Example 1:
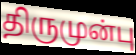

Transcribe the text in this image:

திருமுன்பு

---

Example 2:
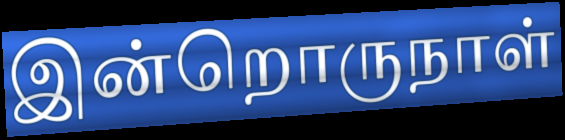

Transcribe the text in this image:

இன்றொருநாள்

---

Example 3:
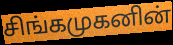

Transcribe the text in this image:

சிங்கமுகனின்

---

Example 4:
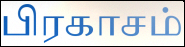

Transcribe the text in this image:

பிரகாசம்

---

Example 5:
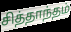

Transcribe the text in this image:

சித்தாந்தம்